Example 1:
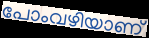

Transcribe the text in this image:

പോംവഴിയാണ്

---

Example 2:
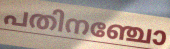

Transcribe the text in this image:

പതിനഞ്ചോ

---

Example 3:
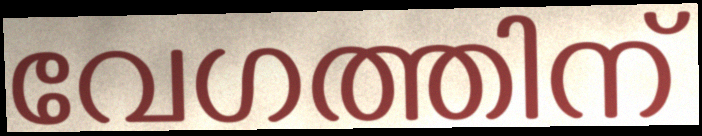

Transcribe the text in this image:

വേഗത്തിന്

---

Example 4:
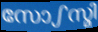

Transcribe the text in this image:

സോഽസ്മി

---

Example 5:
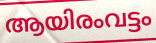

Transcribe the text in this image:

ആയിരംവട്ടം